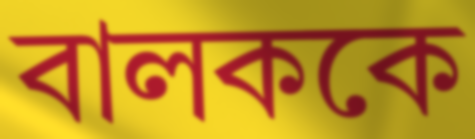
বালককে